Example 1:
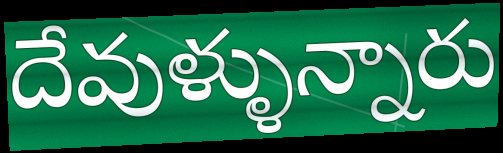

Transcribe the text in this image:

దేవుళ్ళున్నారు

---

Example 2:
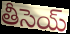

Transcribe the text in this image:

తీసెయ్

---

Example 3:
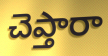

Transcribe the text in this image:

చెప్తారా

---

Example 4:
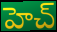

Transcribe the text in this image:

హెచ్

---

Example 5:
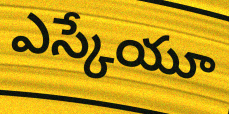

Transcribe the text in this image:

ఎస్కేయూ